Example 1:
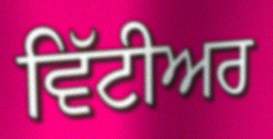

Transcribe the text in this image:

ਵਿੱਟੀਅਰ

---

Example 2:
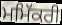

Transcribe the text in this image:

ਮਮਿੱਕਰੀ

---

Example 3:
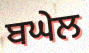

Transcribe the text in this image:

ਬਘੇਲ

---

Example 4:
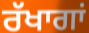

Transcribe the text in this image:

ਰੱਖਾਗਾਂ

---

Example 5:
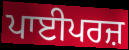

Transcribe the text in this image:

ਪਾਈਪਰਜ਼